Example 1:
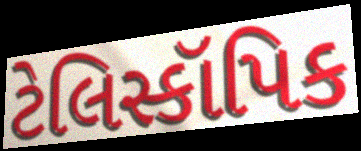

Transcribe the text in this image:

ટેલિસ્કૉપિક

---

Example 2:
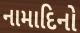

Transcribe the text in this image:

નામાદિનો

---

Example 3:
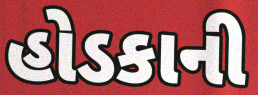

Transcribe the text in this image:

હોડકાની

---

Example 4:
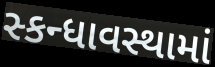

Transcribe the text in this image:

સ્કન્ધાવસ્થામાં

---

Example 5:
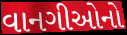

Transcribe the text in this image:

વાનગીઓનો